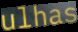
ulhas